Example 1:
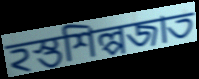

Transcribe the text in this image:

হস্তশিল্পজাত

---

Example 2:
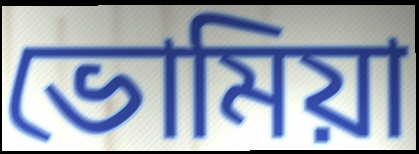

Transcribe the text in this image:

ভোমিয়া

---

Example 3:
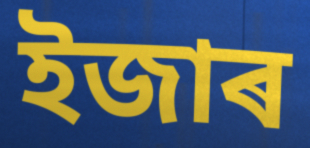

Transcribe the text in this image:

ইজাৰ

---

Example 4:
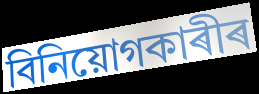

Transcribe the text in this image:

বিনিয়োগকাৰীৰ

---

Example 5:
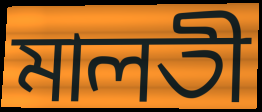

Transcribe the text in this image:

মালতী